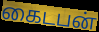
கைடபன்